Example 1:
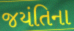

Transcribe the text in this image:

જયંતિના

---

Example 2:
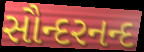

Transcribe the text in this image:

સૌન્દરનન્દ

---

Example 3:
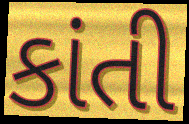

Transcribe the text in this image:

કાંતી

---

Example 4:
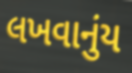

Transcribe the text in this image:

લખવાનુંય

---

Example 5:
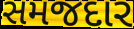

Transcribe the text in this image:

સમજદાર